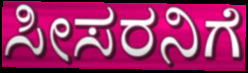
ಸೀಸರನಿಗೆ